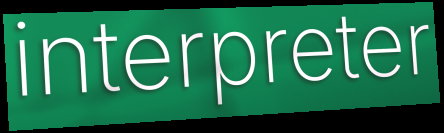
interpreter